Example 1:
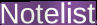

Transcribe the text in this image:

Notelist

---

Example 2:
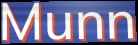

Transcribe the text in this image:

Munn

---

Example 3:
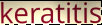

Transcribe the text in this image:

keratitis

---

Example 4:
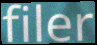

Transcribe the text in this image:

filer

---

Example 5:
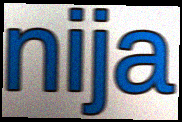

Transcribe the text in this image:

nija